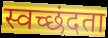
स्वच्छंदता